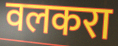
वलकरा